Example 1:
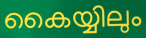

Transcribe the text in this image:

കൈയ്യിലും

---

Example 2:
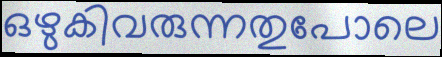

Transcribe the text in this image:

ഒഴുകിവരുന്നതുപോലെ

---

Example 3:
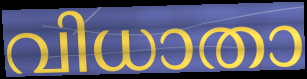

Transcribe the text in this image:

വിധാതാ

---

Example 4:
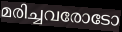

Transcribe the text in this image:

മരിച്ചവരോടോ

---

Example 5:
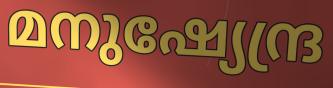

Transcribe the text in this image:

മനുഷ്യേന്ദ്ര